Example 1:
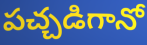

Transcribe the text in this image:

పచ్చడిగానో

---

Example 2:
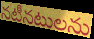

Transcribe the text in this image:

నటీనటులను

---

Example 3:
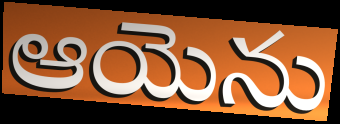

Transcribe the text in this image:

ఆయెను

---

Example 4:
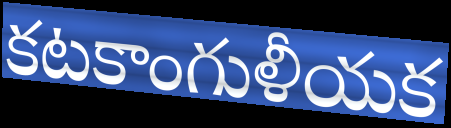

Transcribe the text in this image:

కటకాంగుళీయక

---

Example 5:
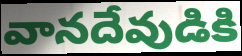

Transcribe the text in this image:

వానదేవుడికి